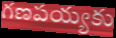
గణపయ్యకు